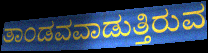
ತಾಂಡವವಾಡುತ್ತಿರುವ